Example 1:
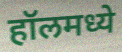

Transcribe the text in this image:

हॉलमध्ये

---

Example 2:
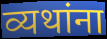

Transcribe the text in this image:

व्यथांना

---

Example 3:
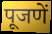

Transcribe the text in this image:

पूजणें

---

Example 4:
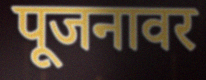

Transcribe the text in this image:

पूजनावर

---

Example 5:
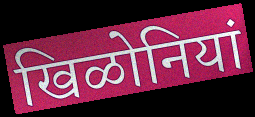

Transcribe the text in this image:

खिळोनियां